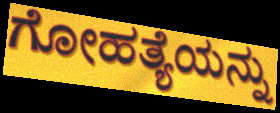
ಗೋಹತ್ಯೆಯನ್ನು